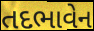
તદભાવેન